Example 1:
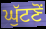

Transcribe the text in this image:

ਘੁੱਟਣੋਂ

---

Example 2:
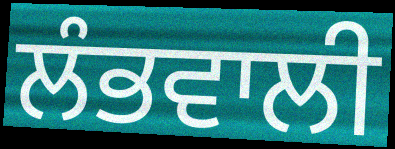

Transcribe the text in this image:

ਲੰਭਵਾਲੀ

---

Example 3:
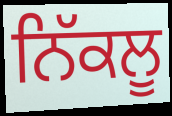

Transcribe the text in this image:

ਨਿੱਕਲੂ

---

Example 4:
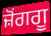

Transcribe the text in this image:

ਜ਼ੋਂਗਗੂ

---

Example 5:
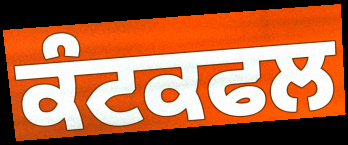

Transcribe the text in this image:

ਕੰਟਕਫਲ